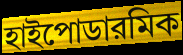
হাইপোডারমিক